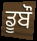
ਡੂਬੌ